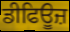
ਡੀਫਿਊਜ਼